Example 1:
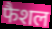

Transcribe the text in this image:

फैशल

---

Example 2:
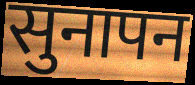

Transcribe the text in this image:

सुनापन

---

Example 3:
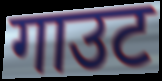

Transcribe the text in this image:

गाउट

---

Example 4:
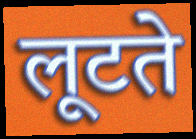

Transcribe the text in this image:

लूटते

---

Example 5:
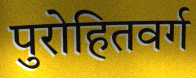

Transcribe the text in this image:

पुरोहितवर्ग